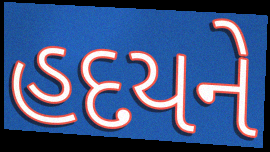
હદયને